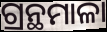
ଗ୍ରନ୍ଥମାଳା